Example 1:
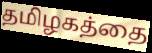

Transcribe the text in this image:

தமிழகத்தை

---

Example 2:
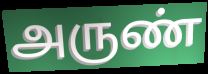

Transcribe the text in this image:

அருண்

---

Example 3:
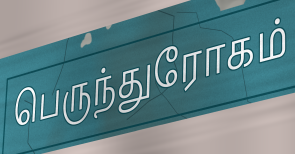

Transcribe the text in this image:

பெருந்துரோகம்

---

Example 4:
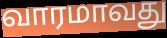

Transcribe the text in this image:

வாரமாவது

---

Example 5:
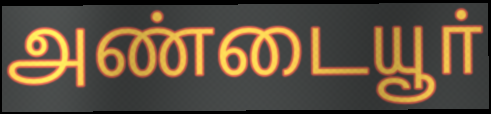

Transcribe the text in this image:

அண்டையூர்